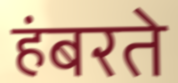
हंबरते